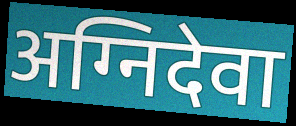
अग्निदेवा